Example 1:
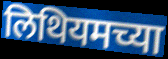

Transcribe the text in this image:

लिथियमच्या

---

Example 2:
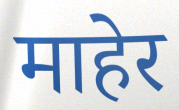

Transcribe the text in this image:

माहेर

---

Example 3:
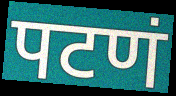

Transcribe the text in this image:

पटणं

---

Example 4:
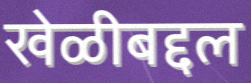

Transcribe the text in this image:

खेळीबद्दल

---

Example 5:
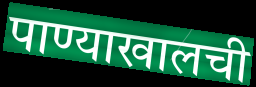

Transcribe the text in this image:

पाण्याखालची